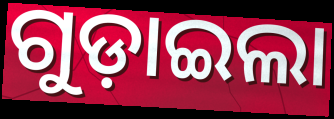
ଗୁଡ଼ାଇଲା